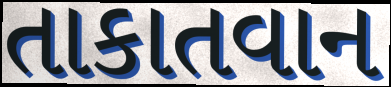
તાકાતવાન